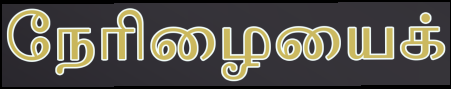
நேரிழையைக்